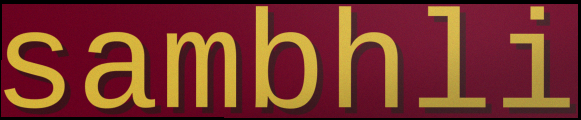
sambhli